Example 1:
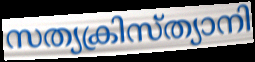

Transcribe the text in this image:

സത്യക്രിസ്ത്യാനി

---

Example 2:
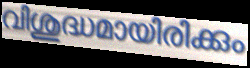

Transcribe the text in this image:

വിശുദ്ധമായിരിക്കും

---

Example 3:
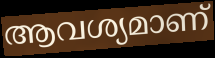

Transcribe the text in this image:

ആവശ്യമാണ്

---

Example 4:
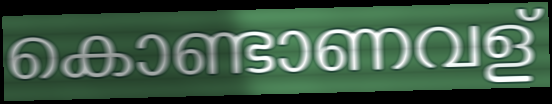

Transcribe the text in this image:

കൊണ്ടാണവള്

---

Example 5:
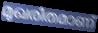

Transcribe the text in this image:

മുഖരിതമാണ്